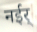
नईर्